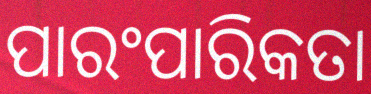
ପାରଂପାରିକତା